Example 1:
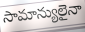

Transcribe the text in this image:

సామాన్యులైనా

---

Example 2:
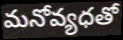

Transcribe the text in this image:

మనోవ్యధతో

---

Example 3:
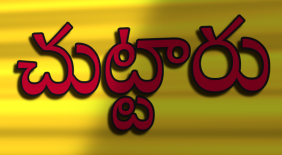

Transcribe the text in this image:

చుట్టారు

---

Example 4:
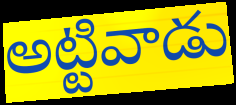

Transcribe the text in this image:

అట్టివాడు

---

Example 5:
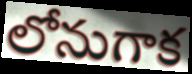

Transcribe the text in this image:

లోనుగాక